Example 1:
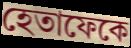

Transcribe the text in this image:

হেতাফেকে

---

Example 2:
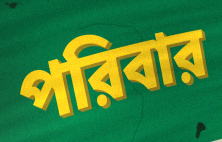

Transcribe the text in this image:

পরিবার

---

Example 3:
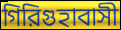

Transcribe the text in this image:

গিরিগুহাবাসী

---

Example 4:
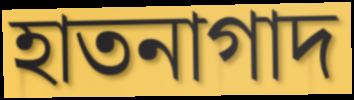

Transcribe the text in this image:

হাতনাগাদ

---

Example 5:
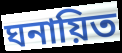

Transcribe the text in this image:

ঘনায়িত